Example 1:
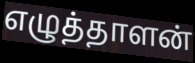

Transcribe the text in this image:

எழுத்தாளன்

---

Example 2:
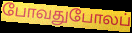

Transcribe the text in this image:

போவதுபோலப்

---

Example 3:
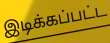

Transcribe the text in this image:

இடிக்கப்பட்ட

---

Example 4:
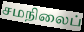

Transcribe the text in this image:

சமநிலைப்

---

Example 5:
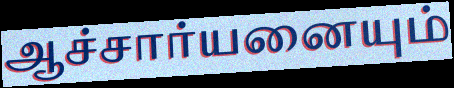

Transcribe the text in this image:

ஆச்சார்யனையும்